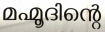
മഹ്മൂദിന്റെ